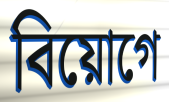
বিয়োগে